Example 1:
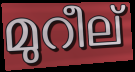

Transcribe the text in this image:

മുറീല്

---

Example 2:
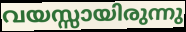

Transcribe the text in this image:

വയസ്സായിരുന്നു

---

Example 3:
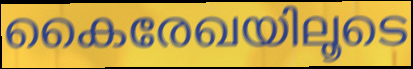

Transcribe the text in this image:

കൈരേഖയിലൂടെ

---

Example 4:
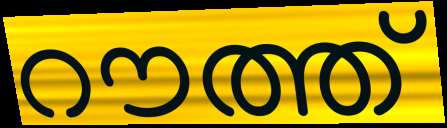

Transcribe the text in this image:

റൗത്ത്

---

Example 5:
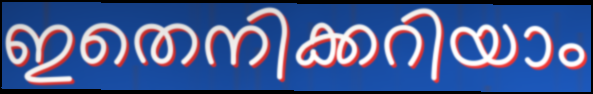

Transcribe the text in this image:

ഇതെനിക്കറിയാം